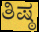
ತಿಷ್ಠ